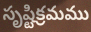
సృష్టిక్రమము